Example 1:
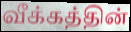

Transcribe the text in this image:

வீக்கத்தின்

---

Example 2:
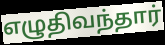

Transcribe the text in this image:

எழுதிவந்தார்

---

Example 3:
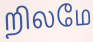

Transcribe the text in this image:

றிலமே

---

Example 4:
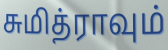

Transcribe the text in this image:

சுமித்ராவும்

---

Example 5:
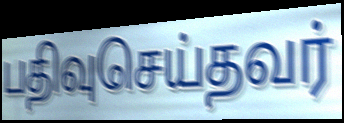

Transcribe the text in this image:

பதிவுசெய்தவர்